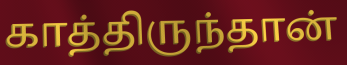
காத்திருந்தான்